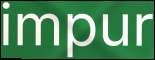
impur